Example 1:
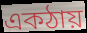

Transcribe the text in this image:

একঠায়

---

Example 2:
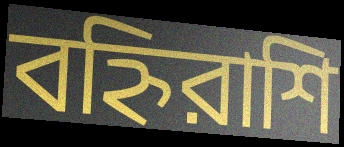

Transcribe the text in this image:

বহ্নিরাশি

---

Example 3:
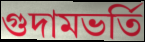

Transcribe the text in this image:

গুদামভর্তি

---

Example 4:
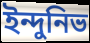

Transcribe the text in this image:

ইন্দুনিভ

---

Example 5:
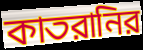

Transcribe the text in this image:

কাতরানির